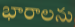
భారాలను